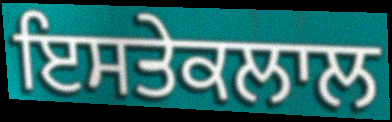
ਇਸਤੇਕਲਾਲ